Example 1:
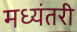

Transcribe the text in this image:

मध्यंतरी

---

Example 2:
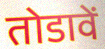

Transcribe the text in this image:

तोडावें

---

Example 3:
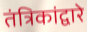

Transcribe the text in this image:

तंत्रिकांद्वारे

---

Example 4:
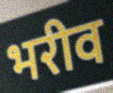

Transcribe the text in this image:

भरीव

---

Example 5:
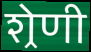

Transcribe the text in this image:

श्रेणी